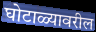
घोटाळ्यावरील